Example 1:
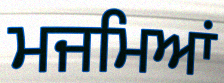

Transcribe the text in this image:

ਮਜਮਿਆਂ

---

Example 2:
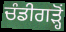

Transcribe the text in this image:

ਚੰਡੀਗੜ੍ਹੋਂ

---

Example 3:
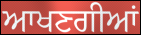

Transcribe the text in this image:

ਆਖਣਗੀਆਂ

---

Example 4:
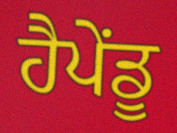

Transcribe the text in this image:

ਹੈਪੇਂਡੂ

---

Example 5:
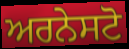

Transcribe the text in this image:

ਅਰਨੇਸਟੋ